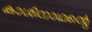
കാശിനാഥന്റെ